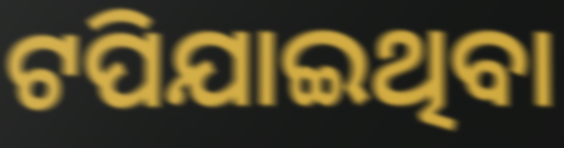
ଟପିଯାଇଥିବା